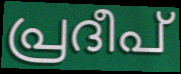
പ്രദീപ്